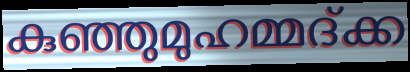
കുഞ്ഞുമുഹമ്മദ്ക്ക